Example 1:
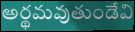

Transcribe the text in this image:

అర్థమవుతుండేవి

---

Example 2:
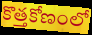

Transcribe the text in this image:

కొత్తకోణంలో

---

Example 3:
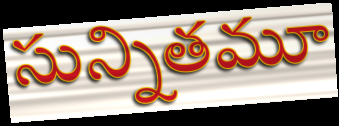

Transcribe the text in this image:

సున్నితమూ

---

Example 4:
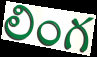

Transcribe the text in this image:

లింగ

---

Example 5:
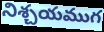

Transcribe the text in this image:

నిశ్చయముగ